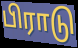
பிராடு